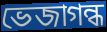
ভেজাগন্ধ